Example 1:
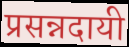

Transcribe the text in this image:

प्रसन्नदायी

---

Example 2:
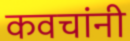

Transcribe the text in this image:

कवचांनी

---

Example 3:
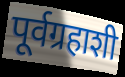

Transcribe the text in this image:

पूर्वग्रहाशी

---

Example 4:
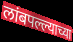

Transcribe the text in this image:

लांबपल्ल्याच्या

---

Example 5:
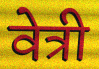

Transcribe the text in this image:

वेत्री